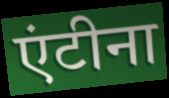
एंटीना